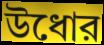
উধোর